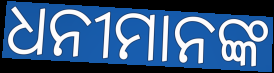
ଧନୀମାନଙ୍କ